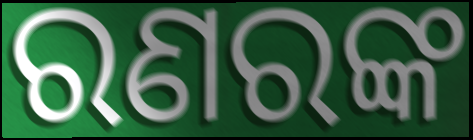
ରଣରଙ୍କ